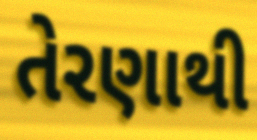
તેરણાથી